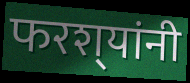
फरश्यांनी